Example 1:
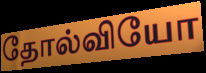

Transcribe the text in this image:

தோல்வியோ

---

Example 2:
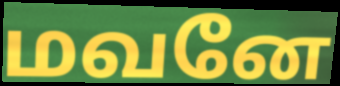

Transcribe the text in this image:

மவனே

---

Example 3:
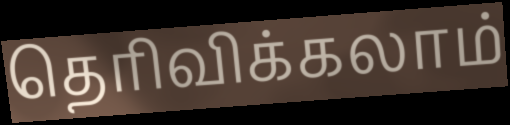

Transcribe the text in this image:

தெரிவிக்கலாம்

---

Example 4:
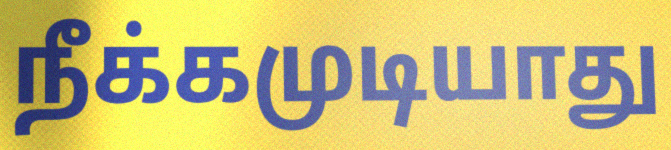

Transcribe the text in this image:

நீக்கமுடியாது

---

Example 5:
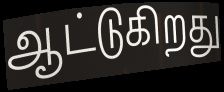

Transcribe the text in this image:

ஆட்டுகிறது